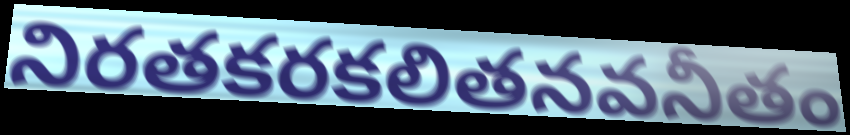
నిరతకరకలితనవనీతం